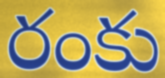
రంకు